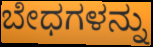
ಬೇಧಗಳನ್ನು